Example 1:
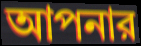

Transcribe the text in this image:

আপনার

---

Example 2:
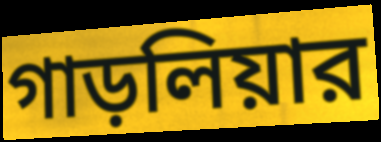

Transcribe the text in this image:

গাড়লিয়ার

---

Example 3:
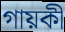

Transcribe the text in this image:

গায়কী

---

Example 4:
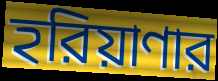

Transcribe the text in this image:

হরিয়াণার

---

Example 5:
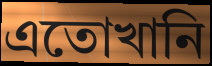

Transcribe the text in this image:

এতোখানি